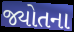
જ્યોતના